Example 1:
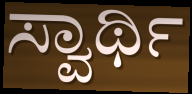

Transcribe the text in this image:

ಸ್ವಾರ್ಥಿ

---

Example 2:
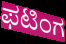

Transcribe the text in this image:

ಫಟಿಂಗ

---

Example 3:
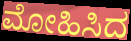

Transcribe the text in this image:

ಮೋಹಿಸಿದ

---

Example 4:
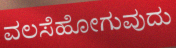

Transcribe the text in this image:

ವಲಸೆಹೋಗುವುದು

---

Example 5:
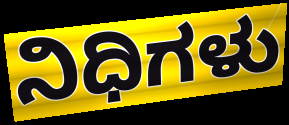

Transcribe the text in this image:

ನಿಧಿಗಳು